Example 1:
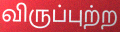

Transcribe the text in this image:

விருப்புற்ற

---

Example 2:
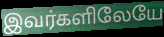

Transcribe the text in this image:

இவர்களிலேயே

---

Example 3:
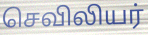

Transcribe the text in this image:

செவிலியர்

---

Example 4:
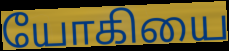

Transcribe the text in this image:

யோகியை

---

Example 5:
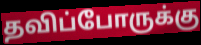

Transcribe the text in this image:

தவிப்போருக்கு